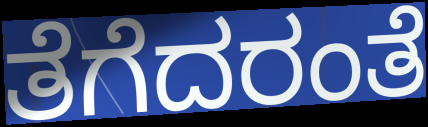
ತೆಗೆದರಂತೆ